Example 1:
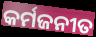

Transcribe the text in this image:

କର୍ମଜନୀତ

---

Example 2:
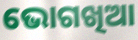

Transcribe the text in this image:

ଭୋଗଖିଆ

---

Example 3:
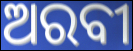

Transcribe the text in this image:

ଅରବୀ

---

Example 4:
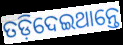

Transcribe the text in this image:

ତଡ଼ିଦେଇଥାନ୍ତେ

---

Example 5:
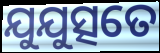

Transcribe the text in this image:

ଯୁଯୁତ୍ସତେ